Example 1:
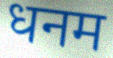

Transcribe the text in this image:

धनम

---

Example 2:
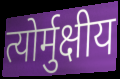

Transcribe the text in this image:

त्योर्मुक्षीय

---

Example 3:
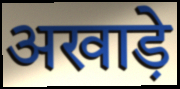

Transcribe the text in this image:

अखाड़े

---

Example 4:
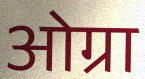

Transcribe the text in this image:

ओग्रा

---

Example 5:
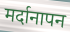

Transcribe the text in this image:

मर्दानापन